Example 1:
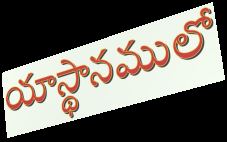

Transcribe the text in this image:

యాస్థానములో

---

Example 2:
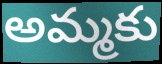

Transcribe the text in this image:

అమ్మకు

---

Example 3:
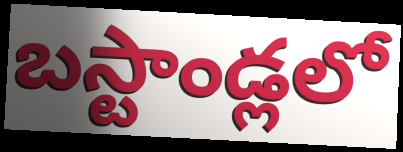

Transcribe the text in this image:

బస్టాండ్లలో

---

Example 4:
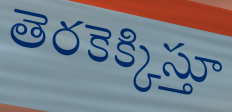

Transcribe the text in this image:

తెరకెక్కిస్తూ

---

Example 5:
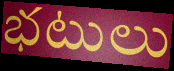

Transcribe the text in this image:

భటులు